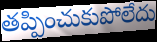
తప్పించుకుపోలేదు